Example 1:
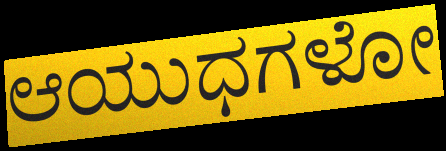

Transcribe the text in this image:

ಆಯುಧಗಳೋ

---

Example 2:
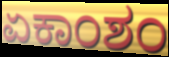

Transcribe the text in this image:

ಏಕಾಂಶಂ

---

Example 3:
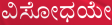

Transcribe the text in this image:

ವಿಸೋಧಯೇ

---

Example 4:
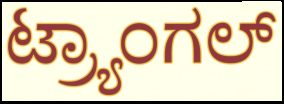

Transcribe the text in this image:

ಟ್ರ್ಯಾಂಗಲ್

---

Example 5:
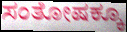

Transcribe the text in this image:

ಸಂತೋಷಕ್ಕೂ